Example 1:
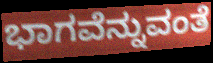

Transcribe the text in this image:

ಭಾಗವೆನ್ನುವಂತೆ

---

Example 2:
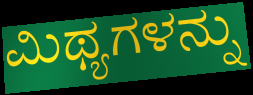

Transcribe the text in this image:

ಮಿಥ್ಯಗಳನ್ನು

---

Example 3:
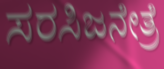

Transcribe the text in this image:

ಸರಸಿಜನೇತ್ರೆ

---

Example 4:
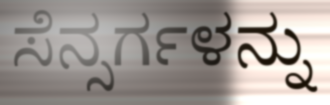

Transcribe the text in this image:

ಸೆನ್ಸರ್ಗಳನ್ನು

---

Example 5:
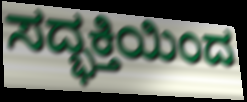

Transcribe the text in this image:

ಸದ್ಭಕ್ತಿಯಿಂದ